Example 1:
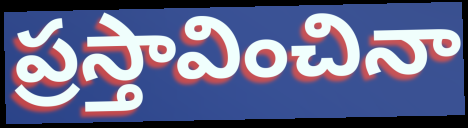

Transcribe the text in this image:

ప్రస్తావించినా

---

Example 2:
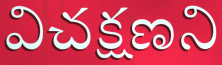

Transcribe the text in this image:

విచక్షణని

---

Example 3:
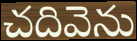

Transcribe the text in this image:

చదివెను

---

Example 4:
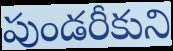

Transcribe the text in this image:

పుండరీకుని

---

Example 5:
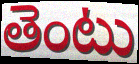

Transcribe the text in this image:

తెంటు